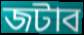
জটাব